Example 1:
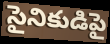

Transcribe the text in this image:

సైనికుడిపై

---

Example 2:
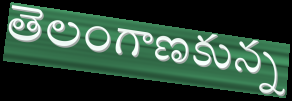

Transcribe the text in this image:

తెలంగాణకున్న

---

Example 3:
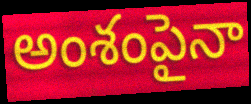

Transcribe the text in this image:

అంశంపైనా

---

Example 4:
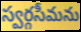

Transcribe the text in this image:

స్వర్గసీమను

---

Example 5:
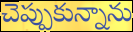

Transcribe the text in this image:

చెప్పుకున్నాను